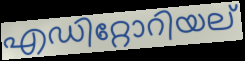
എഡിറ്റോറിയല്